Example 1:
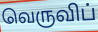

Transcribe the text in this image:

வெருவிப்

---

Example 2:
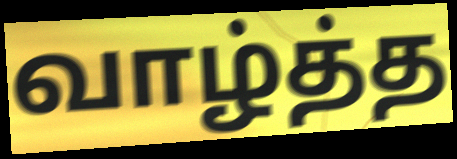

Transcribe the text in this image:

வாழ்த்த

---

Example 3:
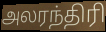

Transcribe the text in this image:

அலரந்திரி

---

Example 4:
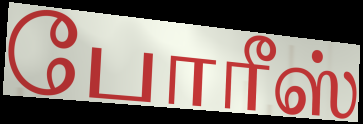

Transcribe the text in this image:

போரீஸ்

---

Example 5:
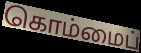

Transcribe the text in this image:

கொம்மைப்